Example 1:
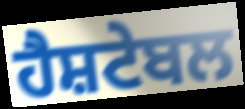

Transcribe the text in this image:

ਹੈਸ਼ਟੇਬਲ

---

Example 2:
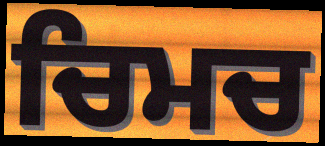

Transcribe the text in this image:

ਚਿਮਚ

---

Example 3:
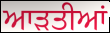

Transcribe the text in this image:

ਆੜਤੀਆਂ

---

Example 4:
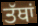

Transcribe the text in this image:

ਤੱਥਾਂ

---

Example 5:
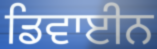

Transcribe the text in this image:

ਡਿਵਾਈਨ